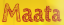
Maata